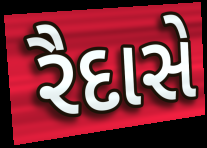
રૈદાસે